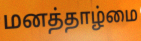
மனத்தாழ்மை